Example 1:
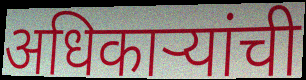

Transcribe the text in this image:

अधिकार्‍यांची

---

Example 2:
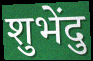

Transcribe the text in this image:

शुभेंदु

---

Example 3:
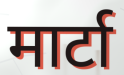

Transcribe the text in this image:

मार्टा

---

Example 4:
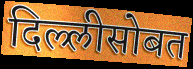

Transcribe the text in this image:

दिल्लीसोबत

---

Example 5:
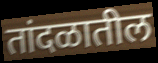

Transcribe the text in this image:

तांदळातील